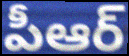
పీఆర్